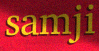
samji